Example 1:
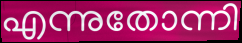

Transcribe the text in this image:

എന്നുതോന്നി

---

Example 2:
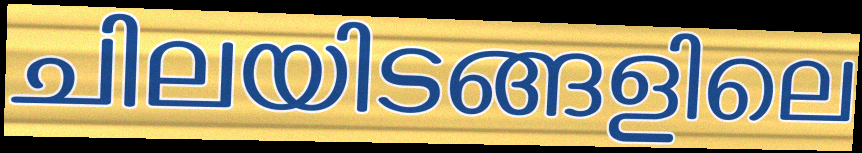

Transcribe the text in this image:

ചിലയിടങ്ങളിലെ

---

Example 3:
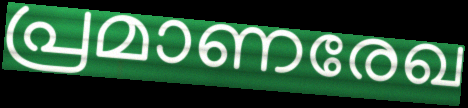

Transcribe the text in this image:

പ്രമാണരേഖ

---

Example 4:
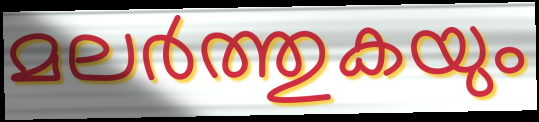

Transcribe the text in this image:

മലർത്തുകയും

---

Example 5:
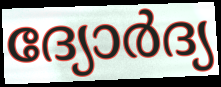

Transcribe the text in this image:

ദ്യോർദ്യ